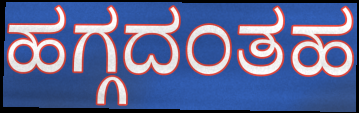
ಹಗ್ಗದಂತಹ